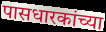
पासधारकांच्या